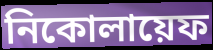
নিকোলায়েফ